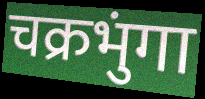
चक्रभुंगा